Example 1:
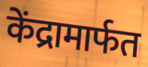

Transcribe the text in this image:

केंद्रामार्फत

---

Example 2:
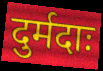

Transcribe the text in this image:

दुर्मदाः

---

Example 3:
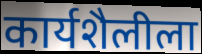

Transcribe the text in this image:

कार्यशैलीला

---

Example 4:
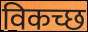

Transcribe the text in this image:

विकच्छ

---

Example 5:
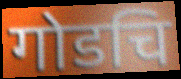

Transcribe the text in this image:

गोडचि